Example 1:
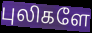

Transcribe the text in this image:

புலிகளே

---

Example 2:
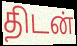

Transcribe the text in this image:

திடன்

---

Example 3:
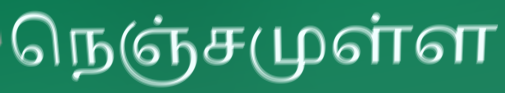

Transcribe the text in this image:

நெஞ்சமுள்ள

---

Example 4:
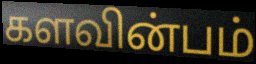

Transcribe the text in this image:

களவின்பம்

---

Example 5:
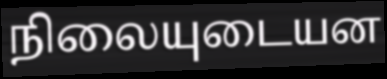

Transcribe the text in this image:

நிலையுடையன